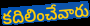
కదిలించేవారు